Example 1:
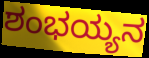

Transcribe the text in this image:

ಶಂಭಯ್ಯನ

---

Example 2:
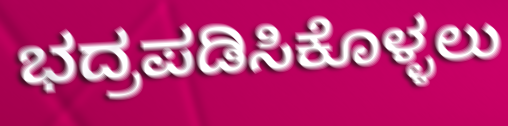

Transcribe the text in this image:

ಭದ್ರಪಡಿಸಿಕೊಳ್ಳಲು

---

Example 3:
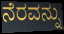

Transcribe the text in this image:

ನೆರವನ್ನು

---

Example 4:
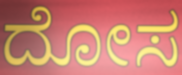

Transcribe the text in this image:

ದೋಸ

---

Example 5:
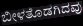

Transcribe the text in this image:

ಬೀಳತೊಡಗಿದವು